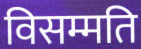
विसम्मति